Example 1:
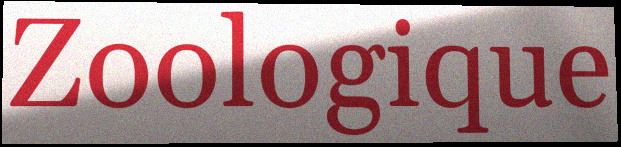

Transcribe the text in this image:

Zoologique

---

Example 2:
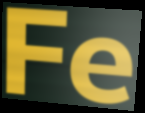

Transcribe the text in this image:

Fe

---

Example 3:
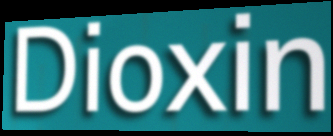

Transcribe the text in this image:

Dioxin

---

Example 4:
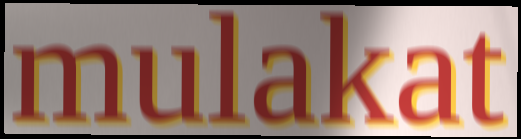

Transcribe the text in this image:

mulakat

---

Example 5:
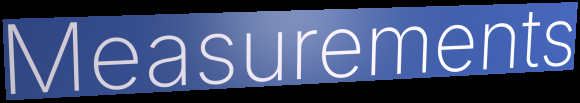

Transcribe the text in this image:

Measurements